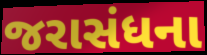
જરાસંધના